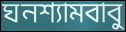
ঘনশ্যামবাবু